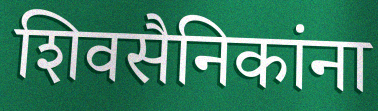
शिवसैनिकांना